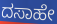
ದಸಾಹೇ